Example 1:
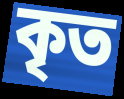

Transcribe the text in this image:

কৃত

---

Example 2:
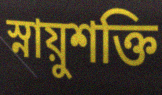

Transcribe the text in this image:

স্নায়ুশক্তি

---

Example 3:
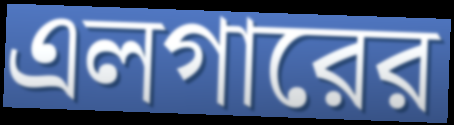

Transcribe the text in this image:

এলগারের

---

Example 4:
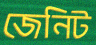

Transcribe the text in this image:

জেনিট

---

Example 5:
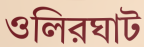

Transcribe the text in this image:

ওলিরঘাট